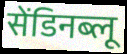
सेंडिनब्लू